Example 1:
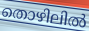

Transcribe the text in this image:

തൊഴിലിൽ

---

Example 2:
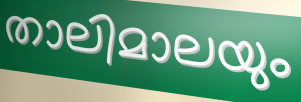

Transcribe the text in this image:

താലിമാലയും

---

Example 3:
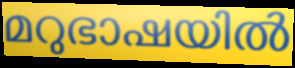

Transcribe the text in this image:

മറുഭാഷയിൽ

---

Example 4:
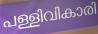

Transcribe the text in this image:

പള്ളിവികാരി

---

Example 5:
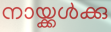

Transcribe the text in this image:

നായ്ക്കൾക്കു